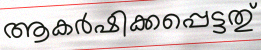
ആകർഷിക്കപ്പെട്ടതു്